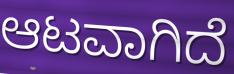
ಆಟವಾಗಿದೆ